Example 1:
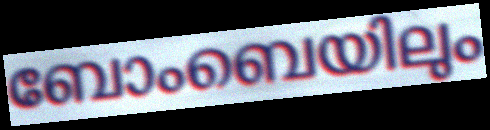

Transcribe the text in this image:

ബോംബെയിലും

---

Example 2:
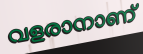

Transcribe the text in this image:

വളരാനാണ്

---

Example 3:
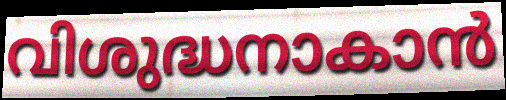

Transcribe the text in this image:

വിശുദ്ധനാകാൻ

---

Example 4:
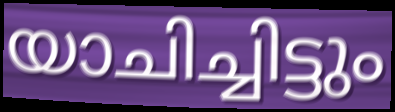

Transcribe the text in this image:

യാചിച്ചിട്ടും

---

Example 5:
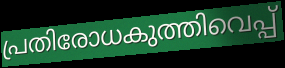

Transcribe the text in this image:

പ്രതിരോധകുത്തിവെപ്പ്